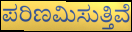
ಪರಿಣಮಿಸುತ್ತಿವೆ